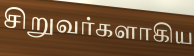
சிறுவர்களாகிய